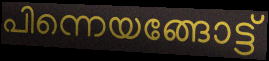
പിന്നെയങ്ങോട്ട്